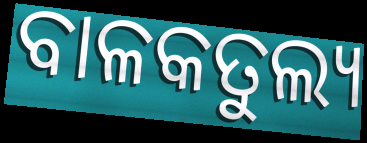
ବାଳକତୁଲ୍ୟ